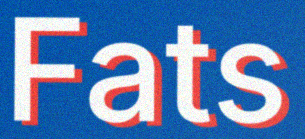
Fats